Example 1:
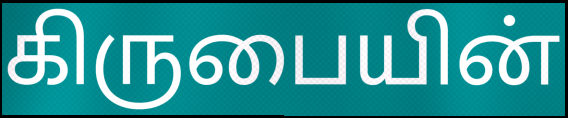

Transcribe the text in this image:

கிருபையின்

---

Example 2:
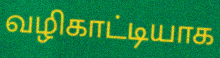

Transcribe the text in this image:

வழிகாட்டியாக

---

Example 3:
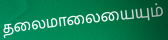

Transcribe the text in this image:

தலைமாலையையும்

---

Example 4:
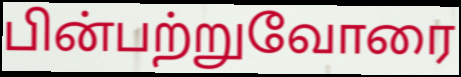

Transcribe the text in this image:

பின்பற்றுவோரை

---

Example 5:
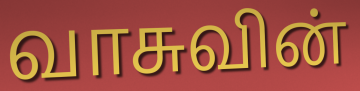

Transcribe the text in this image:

வாசுவின்